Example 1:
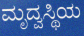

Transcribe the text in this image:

ಮೃದ್ವಸ್ಥಿಯ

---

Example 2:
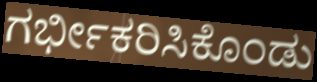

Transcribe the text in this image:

ಗರ್ಭೀಕರಿಸಿಕೊಂಡು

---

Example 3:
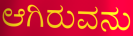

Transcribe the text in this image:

ಆಗಿರುವನು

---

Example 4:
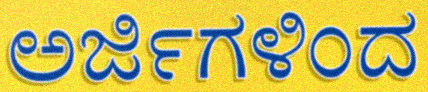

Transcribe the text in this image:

ಅರ್ಜಿಗಳಿಂದ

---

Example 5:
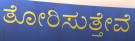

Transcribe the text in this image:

ತೋರಿಸುತ್ತೇವೆ